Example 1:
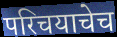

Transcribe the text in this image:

परिचयाचेच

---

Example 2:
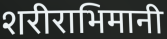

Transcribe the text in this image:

शरीराभिमानी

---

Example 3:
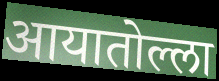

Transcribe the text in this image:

आयातोल्ला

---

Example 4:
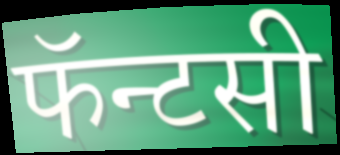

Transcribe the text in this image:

फॅन्टसी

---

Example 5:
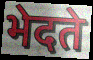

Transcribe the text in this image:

भेदते